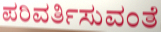
ಪರಿವರ್ತಿಸುವಂತೆ